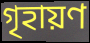
গৃহায়ণ